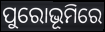
ପୁରୋଭୂମିରେ